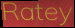
Ratey